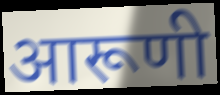
आरूणी